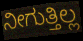
ನೀಗುತ್ತಿಲ್ಲ